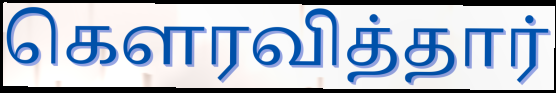
கௌரவித்தார்